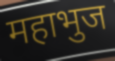
महाभुज